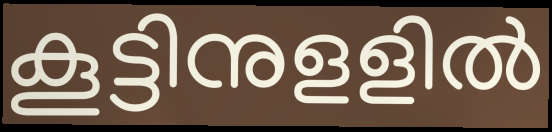
കൂട്ടിനുളളിൽ